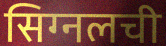
सिग्नलची